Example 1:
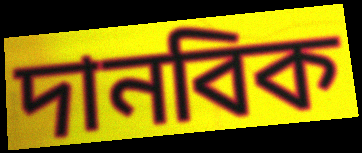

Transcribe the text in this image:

দানবিক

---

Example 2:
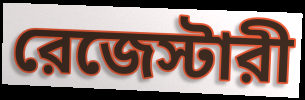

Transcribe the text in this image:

রেজেস্টারী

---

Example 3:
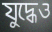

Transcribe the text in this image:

যুদ্ধেও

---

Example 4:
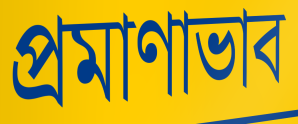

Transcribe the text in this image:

প্রমাণাভাব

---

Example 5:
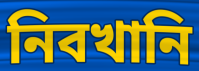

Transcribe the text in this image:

নিবখানি